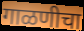
गाळणीचा